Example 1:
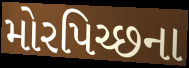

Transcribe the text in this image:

મોરપિચ્છના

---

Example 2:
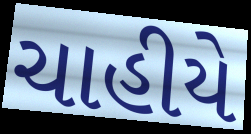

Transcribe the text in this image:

ચાહીયે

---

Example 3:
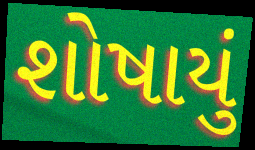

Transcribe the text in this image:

શોષાયું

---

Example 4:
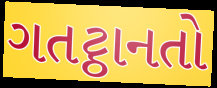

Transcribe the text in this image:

ગતટ્ઠાનતો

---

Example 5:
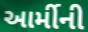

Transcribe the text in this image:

આર્મીની